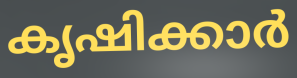
കൃഷിക്കാർ